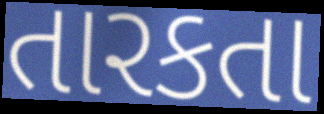
તારકતા